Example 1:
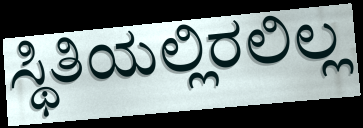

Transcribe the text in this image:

ಸ್ಥಿತಿಯಲ್ಲಿರಲಿಲ್ಲ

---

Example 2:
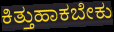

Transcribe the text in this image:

ಕಿತ್ತುಹಾಕಬೇಕು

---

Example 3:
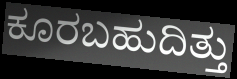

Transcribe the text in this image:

ಕೂರಬಹುದಿತ್ತು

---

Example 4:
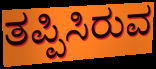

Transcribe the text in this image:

ತಪ್ಪಿಸಿರುವ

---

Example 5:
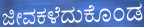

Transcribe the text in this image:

ಜೀವಕಳೆದುಕೊಂಡ